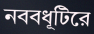
নববধূটিরে